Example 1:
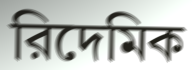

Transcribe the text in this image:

রিদেমিক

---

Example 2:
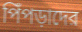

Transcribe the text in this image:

পিঁপড়াদের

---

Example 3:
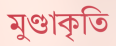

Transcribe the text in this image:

মুণ্ডাকৃতি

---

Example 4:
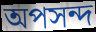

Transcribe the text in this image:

অপসন্দ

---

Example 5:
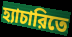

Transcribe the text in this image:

হ্যাচারিতে